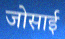
जोसाई